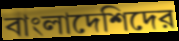
বাংলাদেশিদের